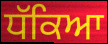
ਧੱਕਿਆ